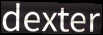
dexter